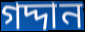
গদ্দান